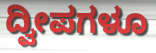
ದ್ವೀಪಗಳೂ